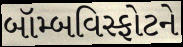
બૉમ્બવિસ્ફોટને